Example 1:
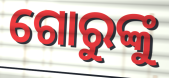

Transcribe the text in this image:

ଗୋରୁଙ୍କୁ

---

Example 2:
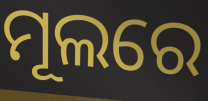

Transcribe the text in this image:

ମୂଲରେ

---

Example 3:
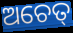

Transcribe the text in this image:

ଅଚେତ୍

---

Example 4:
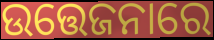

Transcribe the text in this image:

ଉତ୍ତେଜନାରେ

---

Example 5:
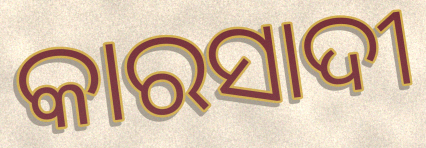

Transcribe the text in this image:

କାରସାଦୀ